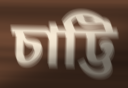
চাট্টি